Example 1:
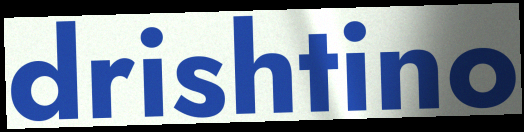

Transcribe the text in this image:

drishtino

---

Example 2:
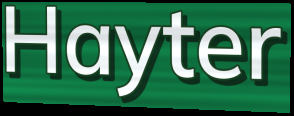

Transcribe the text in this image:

Hayter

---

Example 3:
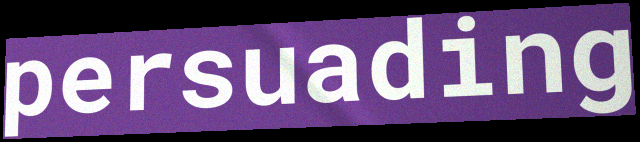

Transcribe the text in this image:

persuading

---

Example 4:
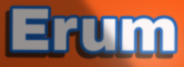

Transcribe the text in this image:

Erum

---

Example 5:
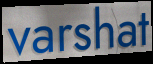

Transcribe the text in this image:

varshat